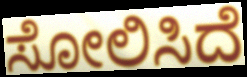
ಸೋಲಿಸಿದೆ